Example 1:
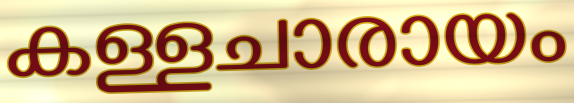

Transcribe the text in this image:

കള്ളചാരായം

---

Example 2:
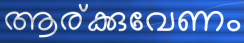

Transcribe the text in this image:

ആര്ക്കുവേണം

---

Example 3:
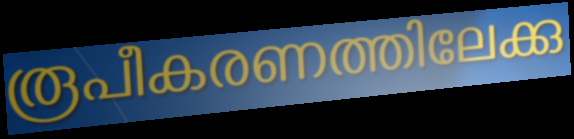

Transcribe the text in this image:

രൂപീകരണത്തിലേക്കു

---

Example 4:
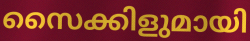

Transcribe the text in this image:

സൈക്കിളുമായി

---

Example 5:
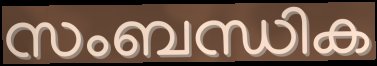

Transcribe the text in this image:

സംബന്ധിക